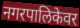
नगरपालिकेवर